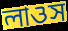
লাওস